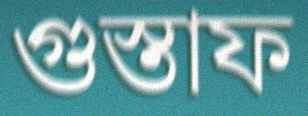
গুস্তাফ